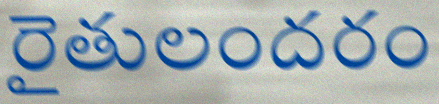
రైతులందరం